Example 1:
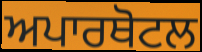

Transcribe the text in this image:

ਅਪਾਰਥੋਟਲ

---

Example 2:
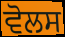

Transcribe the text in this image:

ਵੋਲਸ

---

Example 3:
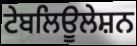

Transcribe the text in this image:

ਟੇਬਲਿਊਲੇਸ਼ਨ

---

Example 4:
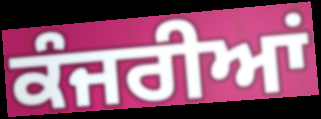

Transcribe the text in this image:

ਕੰਜਰੀਆਂ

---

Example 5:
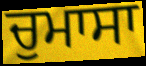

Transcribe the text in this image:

ਚੁਮਾਸਾ